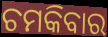
ଚମକିବାର